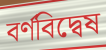
বর্ণবিদ্বেষ